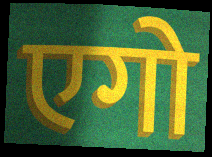
एगो